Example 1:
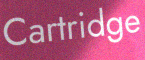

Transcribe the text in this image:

Cartridge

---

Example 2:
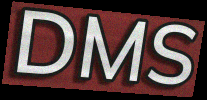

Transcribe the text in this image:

DMS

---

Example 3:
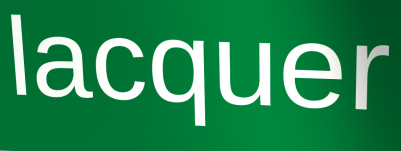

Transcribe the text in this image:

lacquer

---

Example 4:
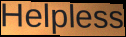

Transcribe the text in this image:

Helpless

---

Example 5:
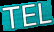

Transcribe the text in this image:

TEL